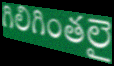
గిలిగింతలై